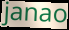
janao